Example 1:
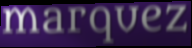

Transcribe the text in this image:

marquez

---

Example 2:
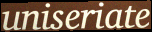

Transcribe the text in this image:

uniseriate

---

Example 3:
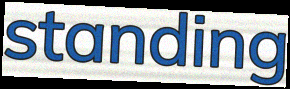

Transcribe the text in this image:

standing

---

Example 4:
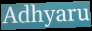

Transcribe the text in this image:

Adhyaru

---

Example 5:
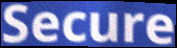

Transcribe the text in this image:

Secure